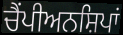
ਚੈਂਪੀਅਨਸ਼ਿਪਾਂ